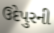
ઉદેપુરની